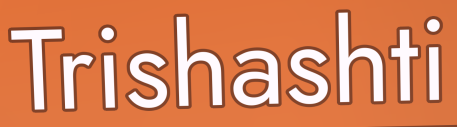
Trishashti